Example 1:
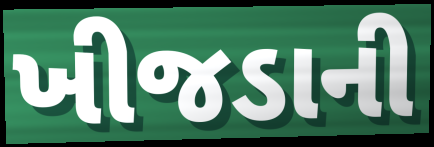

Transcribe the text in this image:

ખીજડાની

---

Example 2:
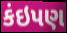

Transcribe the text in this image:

કંઇપણ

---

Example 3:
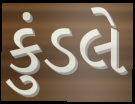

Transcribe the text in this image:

કુંડલે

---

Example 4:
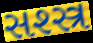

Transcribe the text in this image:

સશ્સ્ત્ર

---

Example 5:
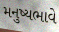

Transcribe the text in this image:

મનુષ્યભાવે